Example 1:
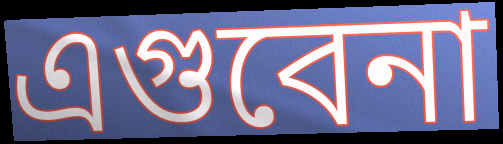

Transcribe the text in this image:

এগুবেনা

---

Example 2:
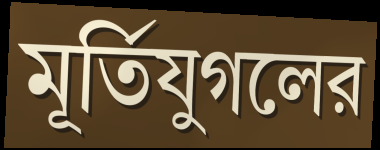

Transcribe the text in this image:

মূর্তিযুগলের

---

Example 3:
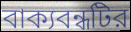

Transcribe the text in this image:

বাক্যবন্ধটির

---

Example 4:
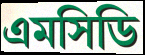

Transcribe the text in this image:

এমসিডি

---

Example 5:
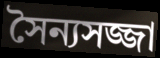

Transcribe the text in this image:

সৈন্যসজ্জা